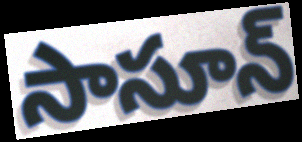
సాసూన్